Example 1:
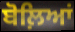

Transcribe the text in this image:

ਬੋਲ਼ਿਆਂ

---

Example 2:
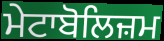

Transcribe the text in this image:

ਮੇਟਾਬੋਲਿਜ਼ਮ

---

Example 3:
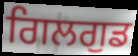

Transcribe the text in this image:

ਗਿਲਗੁਡ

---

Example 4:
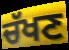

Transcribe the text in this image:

ਚੱਖਣ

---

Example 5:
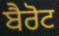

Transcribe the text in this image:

ਬੈਰੋਟ